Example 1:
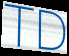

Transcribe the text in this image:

TD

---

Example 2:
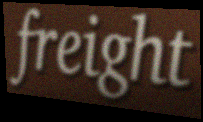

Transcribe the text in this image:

freight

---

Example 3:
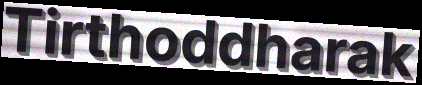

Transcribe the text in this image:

Tirthoddharak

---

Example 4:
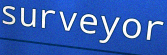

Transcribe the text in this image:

surveyor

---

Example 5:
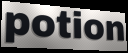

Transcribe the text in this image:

potion